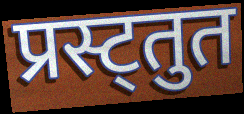
प्रस्ट्तुत